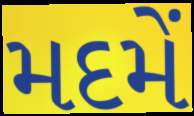
મદમેં